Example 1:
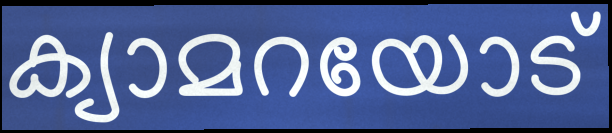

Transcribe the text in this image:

ക്യാമറയോട്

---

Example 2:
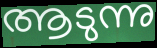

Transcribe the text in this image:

ആടുന്നു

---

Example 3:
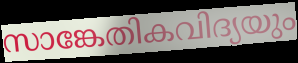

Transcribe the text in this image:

സാങ്കേതികവിദ്യയും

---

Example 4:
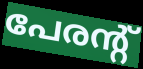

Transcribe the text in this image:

പേരന്റ്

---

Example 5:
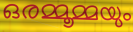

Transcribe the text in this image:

ഒരമ്മൂമ്മയും